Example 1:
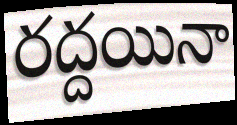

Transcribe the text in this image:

రద్దయినా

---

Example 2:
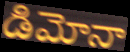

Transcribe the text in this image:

డిమోనా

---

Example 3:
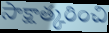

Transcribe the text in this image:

సాక్షాత్కరించి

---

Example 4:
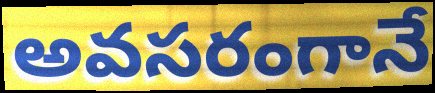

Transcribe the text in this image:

అవసరంగానే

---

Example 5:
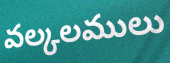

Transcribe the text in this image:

వల్కలములు